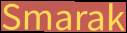
Smarak